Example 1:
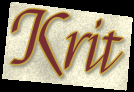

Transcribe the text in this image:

Krit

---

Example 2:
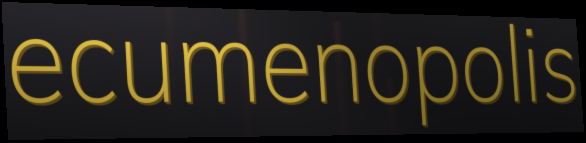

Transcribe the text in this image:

ecumenopolis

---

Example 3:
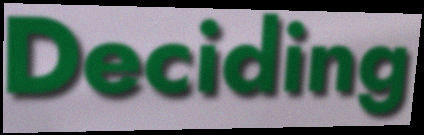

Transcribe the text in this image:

Deciding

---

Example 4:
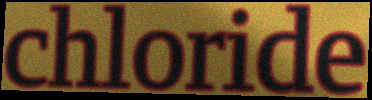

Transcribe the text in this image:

chloride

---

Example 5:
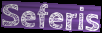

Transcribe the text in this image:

Seferis